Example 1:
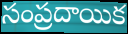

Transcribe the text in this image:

సంప్రదాయిక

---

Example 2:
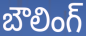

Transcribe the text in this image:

బౌలింగ్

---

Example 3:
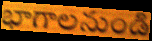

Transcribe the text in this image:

భాగాలనుండి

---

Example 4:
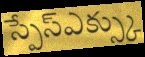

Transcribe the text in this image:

స్పేస్ఎక్స్కు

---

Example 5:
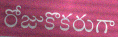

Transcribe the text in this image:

రోజుకొకరుగా